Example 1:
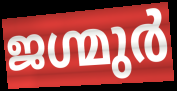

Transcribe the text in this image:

ജഗ്മുർ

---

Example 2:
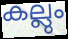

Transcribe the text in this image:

കല്ലും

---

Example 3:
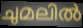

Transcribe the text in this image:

ചുമലിൽ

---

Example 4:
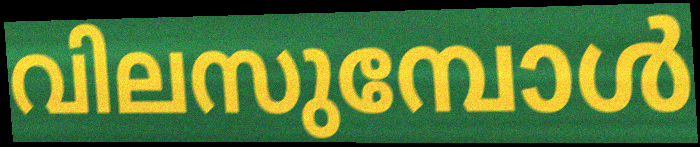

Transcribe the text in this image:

വിലസുമ്പോൾ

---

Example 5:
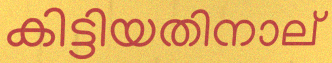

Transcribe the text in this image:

കിട്ടിയതിനാല്